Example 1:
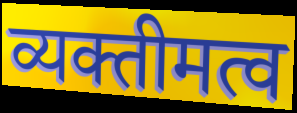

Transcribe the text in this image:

व्यक्तीमत्व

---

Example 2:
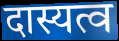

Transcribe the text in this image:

दास्यत्व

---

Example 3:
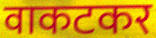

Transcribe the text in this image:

वाकटकर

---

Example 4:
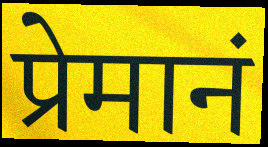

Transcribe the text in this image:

प्रेमानं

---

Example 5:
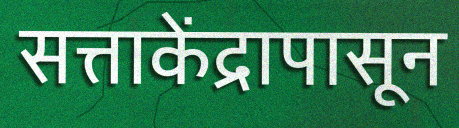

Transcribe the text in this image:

सत्ताकेंद्रापासून